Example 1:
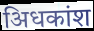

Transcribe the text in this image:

अिधकांश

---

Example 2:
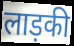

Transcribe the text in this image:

लाड़की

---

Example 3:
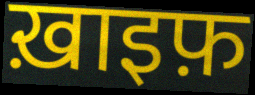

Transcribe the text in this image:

ख़ाइफ़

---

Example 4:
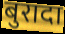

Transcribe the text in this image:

बुरादा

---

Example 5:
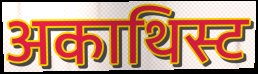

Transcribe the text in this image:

अकाथिस्ट